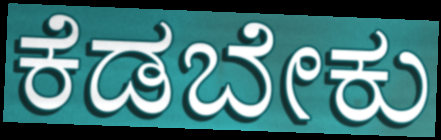
ಕೆಡಬೇಕು